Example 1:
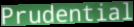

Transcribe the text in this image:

Prudential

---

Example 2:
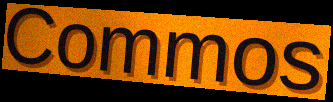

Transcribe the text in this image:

Commos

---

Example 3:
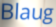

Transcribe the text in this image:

Blaug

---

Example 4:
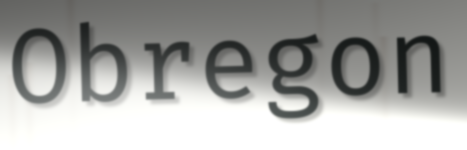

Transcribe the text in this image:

Obregon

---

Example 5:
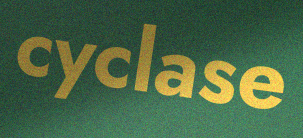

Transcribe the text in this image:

cyclase